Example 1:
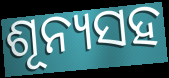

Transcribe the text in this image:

ଶୂନ୍ୟସହ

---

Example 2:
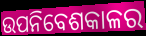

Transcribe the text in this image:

ଉପନିବେଶକାଳର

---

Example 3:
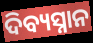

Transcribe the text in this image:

ଦିବ୍ୟସ୍ନାନ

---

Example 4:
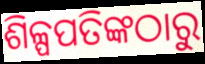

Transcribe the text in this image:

ଶିଳ୍ପପତିଙ୍କଠାରୁ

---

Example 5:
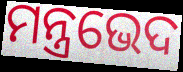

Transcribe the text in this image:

ମନ୍ତ୍ରଭେଦ